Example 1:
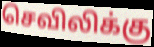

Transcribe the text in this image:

செவிலிக்கு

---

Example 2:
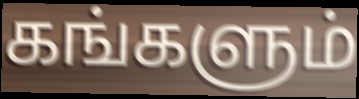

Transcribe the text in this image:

கங்களும்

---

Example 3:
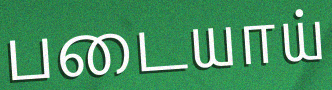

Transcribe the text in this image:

படையாய்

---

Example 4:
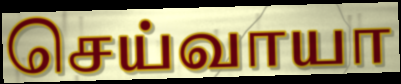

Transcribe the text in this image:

செய்வாயா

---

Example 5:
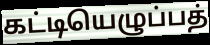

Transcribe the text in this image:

கட்டியெழுப்பத்